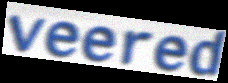
veered